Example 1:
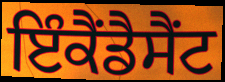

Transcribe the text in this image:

ਇੰਕੈਂਡੈਸੈਂਟ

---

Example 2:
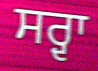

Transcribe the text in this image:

ਸਰ੍ਦਾ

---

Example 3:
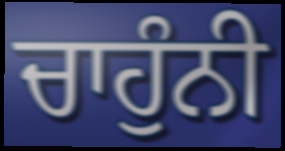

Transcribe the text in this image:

ਚਾਹੁੰਨੀ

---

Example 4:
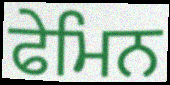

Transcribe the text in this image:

ਫੇਮਿਨ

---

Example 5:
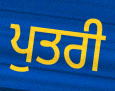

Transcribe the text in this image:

ਪੁਤਰੀ